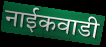
नाईकवाडी